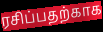
ரசிப்பதற்காக